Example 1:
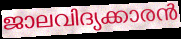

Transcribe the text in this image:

ജാലവിദ്യക്കാരൻ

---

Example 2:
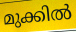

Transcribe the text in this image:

മുക്കിൽ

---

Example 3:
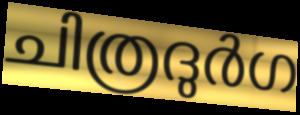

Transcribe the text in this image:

ചിത്രദുർഗ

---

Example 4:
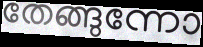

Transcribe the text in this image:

തേങ്ങുന്നോ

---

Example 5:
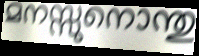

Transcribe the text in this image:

മനസ്സുനൊന്തു